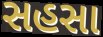
સહસા